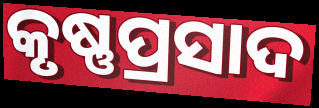
କୃଷ୍ଣପ୍ରସାଦ